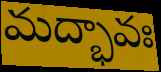
మద్భావః